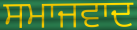
ਸਮਾਜਵਾਦ